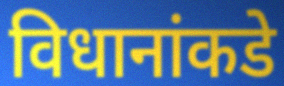
विधानांकडे